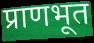
प्राणभूत